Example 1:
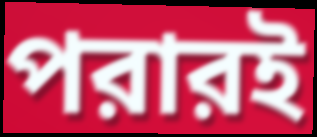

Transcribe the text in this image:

পরারই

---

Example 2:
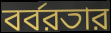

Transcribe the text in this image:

বর্বরতার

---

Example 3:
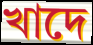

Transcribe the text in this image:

খাদে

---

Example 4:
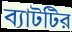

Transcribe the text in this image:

ব্যাটটির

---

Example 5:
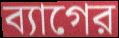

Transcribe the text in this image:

ব্যাগের